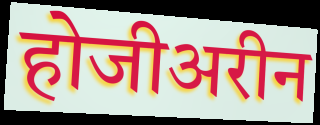
होजीअरीन